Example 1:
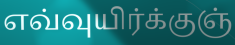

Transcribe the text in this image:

எவ்வுயிர்க்குஞ்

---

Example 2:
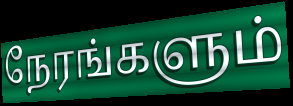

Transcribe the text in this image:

நேரங்களும்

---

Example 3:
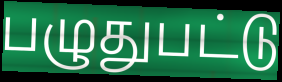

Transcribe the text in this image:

பழுதுபட்டு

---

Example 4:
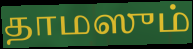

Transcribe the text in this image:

தாமஸும்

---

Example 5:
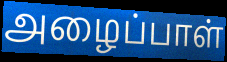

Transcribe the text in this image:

அழைப்பாள்